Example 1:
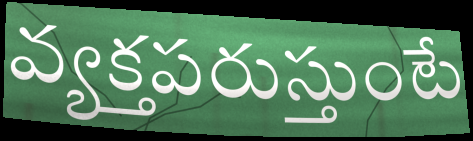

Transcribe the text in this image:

వ్యక్తపరుస్తుంటే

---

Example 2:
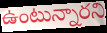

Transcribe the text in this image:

ఉంటున్నారని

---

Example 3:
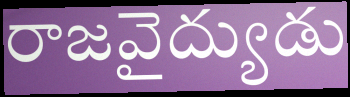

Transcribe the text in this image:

రాజవైద్యుడు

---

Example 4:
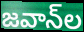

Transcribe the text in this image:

జవాన్‌ల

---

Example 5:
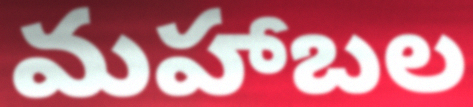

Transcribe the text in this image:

మహాబల